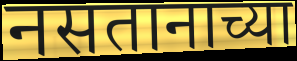
नसतानाच्या